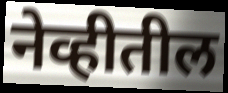
नेव्हीतील